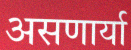
असणार्या